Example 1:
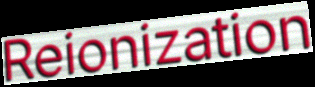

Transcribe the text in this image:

Reionization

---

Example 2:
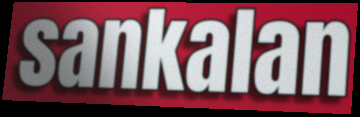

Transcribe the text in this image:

sankalan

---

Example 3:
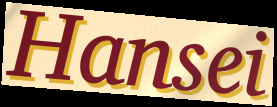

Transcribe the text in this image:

Hansei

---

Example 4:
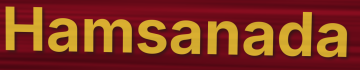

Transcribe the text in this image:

Hamsanada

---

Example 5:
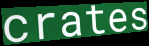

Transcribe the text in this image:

crates